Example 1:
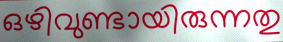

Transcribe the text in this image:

ഒഴിവുണ്ടായിരുന്നതു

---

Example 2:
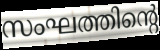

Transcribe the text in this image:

സംഘത്തിന്റെ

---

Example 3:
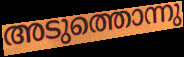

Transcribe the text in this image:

അടുത്തൊന്നു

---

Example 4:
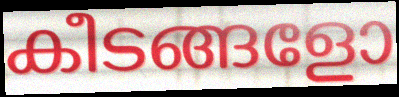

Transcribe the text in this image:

കീടങ്ങളോ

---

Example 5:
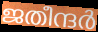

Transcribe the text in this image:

ജതീന്ദർ